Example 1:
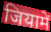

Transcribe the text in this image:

जियामें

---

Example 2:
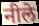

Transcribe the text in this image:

नीले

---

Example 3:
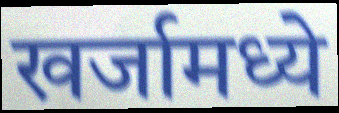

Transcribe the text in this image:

खर्जामध्ये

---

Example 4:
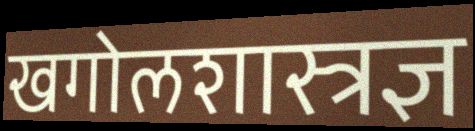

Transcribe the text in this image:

खगोलशास्त्रज्ञ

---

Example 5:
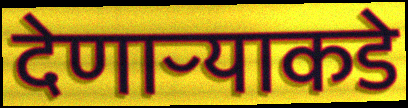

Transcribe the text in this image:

देणाऱ्याकडे